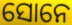
ସୋନେ